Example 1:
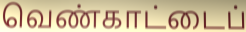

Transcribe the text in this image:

வெண்காட்டைப்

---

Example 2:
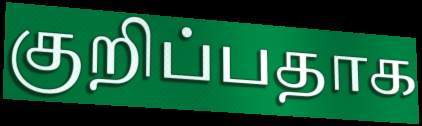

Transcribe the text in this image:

குறிப்பதாக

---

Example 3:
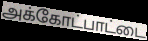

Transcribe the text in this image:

அக்கோட்பாட்டை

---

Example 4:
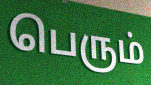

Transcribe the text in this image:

பெரும்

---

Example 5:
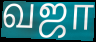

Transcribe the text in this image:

வஜா